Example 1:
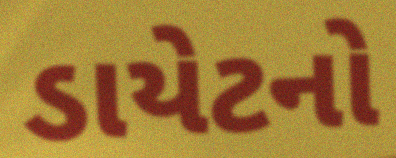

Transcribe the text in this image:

ડાયેટનો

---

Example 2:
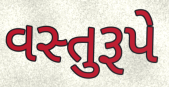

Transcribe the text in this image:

વસ્તુરૂપે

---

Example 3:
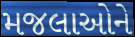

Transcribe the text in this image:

મજલાઓને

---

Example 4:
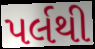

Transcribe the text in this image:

પર્લથી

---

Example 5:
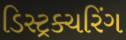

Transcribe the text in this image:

ડિસ્ટ્રક્ચરિંગ